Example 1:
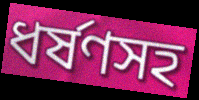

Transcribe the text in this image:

ধর্ষণসহ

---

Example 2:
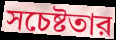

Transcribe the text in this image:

সচেষ্টতার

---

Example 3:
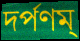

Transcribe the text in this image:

দর্পণম্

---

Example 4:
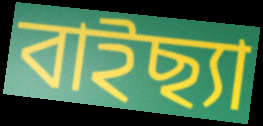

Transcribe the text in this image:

বাইছ্যা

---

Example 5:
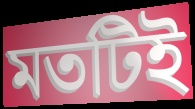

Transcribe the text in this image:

মতটিই